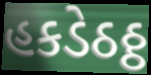
હકડેઠઠ્ઠ